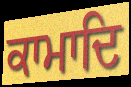
ਕਾਮਾਦਿ